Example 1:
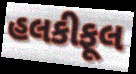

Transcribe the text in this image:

હલકીફૂલ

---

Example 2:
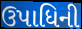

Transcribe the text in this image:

ઉપાધિની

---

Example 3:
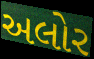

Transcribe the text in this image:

અલોર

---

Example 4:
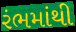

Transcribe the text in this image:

રંભમાંથી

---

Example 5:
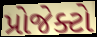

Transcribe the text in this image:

પ્રોજેક્ટો